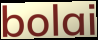
bolai